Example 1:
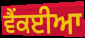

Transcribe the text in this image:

ਵੈਂਕਈਆ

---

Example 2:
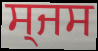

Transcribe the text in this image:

ਸ੍ਜਸ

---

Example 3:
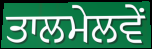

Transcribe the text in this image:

ਤਾਲਮੇਲਵੇਂ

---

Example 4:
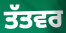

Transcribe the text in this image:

ਤੱਤਵਰ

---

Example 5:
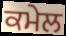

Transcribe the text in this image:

ਕਮੇਲ